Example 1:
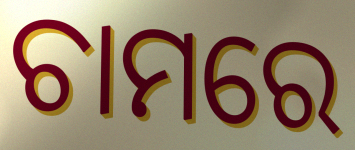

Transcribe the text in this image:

ଚାମରେ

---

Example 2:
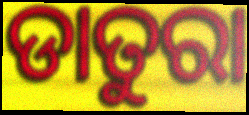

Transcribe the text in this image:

ଡାତୁରା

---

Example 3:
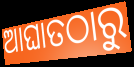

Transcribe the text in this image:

ଆଘାତଠାରୁ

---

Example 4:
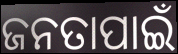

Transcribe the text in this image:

ଜନତାପାଇଁ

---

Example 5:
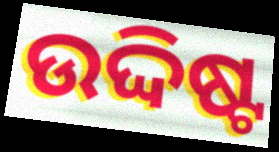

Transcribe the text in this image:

ଉଦ୍ଦିଷ୍ଟ